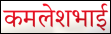
कमलेशभाई